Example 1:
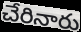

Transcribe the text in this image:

చేరినారు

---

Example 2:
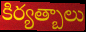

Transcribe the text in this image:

కిర్యత్బాలు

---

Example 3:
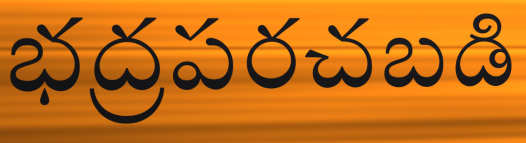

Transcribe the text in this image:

భద్రపరచబడి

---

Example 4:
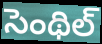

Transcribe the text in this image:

సెంథిల్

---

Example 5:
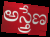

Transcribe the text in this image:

అస్త్రేణ